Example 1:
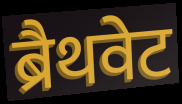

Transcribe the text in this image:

ब्रैथवेट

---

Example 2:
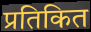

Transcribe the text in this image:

प्रतिकित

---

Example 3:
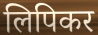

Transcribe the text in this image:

लिपिकर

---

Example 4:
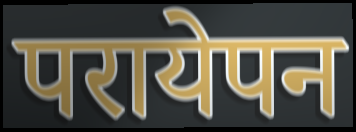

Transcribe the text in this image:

परायेपन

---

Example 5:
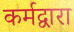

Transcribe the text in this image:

कर्मद्वारा